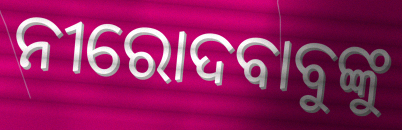
ନୀରୋଦବାବୁଙ୍କୁ